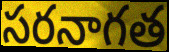
సరనాగత